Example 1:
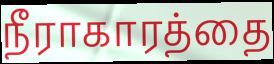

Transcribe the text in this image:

நீராகாரத்தை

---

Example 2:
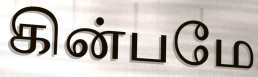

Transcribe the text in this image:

கின்பமே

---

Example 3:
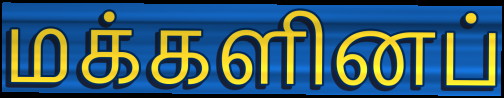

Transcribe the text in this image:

மக்களினப்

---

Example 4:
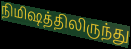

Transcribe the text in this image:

நிமிஷத்திலிருந்து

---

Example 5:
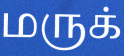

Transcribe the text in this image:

மருக்